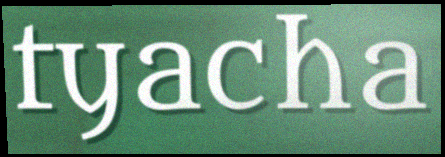
tyacha